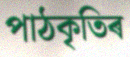
পাঠকৃতিৰ